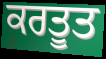
ਕਰਤੂਤ